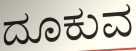
ದೂಕುವ